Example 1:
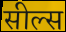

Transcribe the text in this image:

सील्स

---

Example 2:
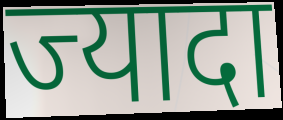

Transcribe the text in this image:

ज्यादा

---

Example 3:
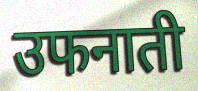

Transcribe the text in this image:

उफनाती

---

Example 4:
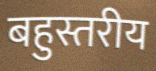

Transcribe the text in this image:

बहुस्तरीय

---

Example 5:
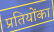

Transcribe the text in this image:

प्रतियोंका